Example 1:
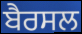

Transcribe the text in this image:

ਬੈਰਸਲ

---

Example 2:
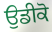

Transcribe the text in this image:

ਉਡੀਕੋ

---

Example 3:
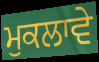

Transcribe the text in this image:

ਮੁਕਲਾਵੇ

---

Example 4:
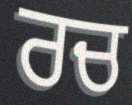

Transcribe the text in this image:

ਰਚ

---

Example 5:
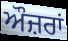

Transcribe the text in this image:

ਔਜ਼ਰਾਂ